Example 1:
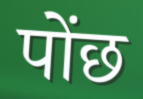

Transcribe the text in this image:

पोंछ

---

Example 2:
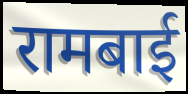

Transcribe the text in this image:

रामबाई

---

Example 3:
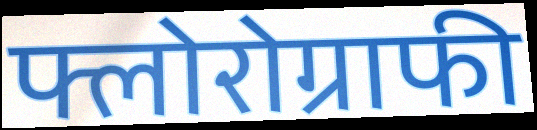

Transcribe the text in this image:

फ्लोरोग्राफी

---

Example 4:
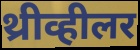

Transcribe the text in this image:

थ्रीव्हीलर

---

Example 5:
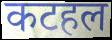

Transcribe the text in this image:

कटहल